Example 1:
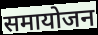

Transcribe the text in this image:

समायोजन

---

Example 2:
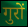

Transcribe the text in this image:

गुरों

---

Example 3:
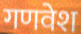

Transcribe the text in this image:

गणवेश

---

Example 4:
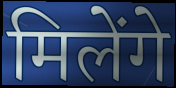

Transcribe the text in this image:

मिलेंगे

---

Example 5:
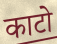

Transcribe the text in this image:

काटो